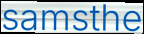
samsthe